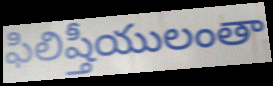
ఫిలిష్తీయులంతా